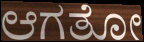
ಆಗತೋ